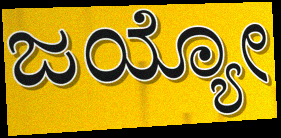
ಜಯ್ಯೋ